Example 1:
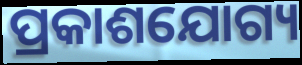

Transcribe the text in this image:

ପ୍ରକାଶଯୋଗ୍ୟ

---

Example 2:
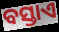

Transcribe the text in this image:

ବସ୍ତାଏ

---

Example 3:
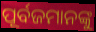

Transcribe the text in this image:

ପୂର୍ବଜମାନଙ୍କୁ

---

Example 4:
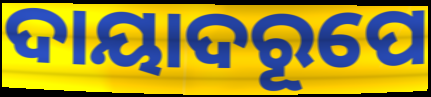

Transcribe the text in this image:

ଦାୟାଦରୂପେ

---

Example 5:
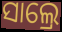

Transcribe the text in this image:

ସାଲ୍ରେ